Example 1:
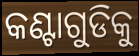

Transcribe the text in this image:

କଣ୍ଟାଗୁଡିକୁ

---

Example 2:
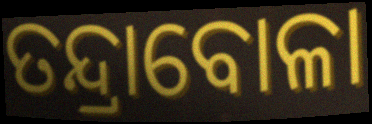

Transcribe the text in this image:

ତନ୍ଦ୍ରାବୋଳା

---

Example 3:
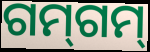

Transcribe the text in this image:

ଗମ୍‌ଗମ୍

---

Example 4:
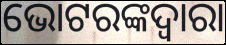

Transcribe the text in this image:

ଭୋଟରଙ୍କଦ୍ଵାରା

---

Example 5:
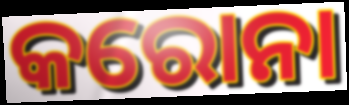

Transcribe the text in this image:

କରୋନା